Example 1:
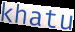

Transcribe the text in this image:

khatu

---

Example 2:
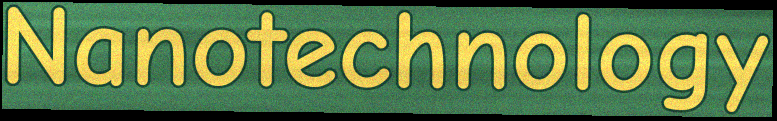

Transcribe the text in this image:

Nanotechnology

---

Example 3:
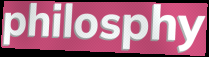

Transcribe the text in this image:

philosphy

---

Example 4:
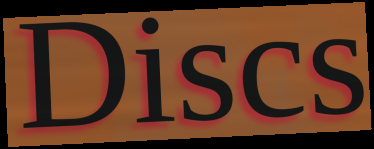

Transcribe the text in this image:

Discs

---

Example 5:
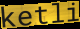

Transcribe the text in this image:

ketli